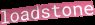
loadstone